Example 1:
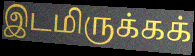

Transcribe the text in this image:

இடமிருக்கக்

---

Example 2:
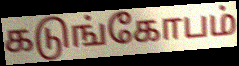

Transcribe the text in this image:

கடுங்கோபம்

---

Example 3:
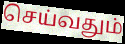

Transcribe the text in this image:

செய்வதும்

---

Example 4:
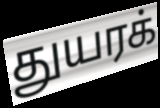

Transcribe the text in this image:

துயரக்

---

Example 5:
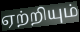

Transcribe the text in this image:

ஏற்றியும்